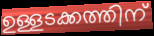
ഉള്ളടക്കത്തിന്